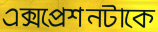
এক্সপ্রেশনটাকে